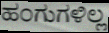
ಹಂಗುಗಳಿಲ್ಲ